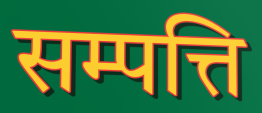
सम्पत्ति